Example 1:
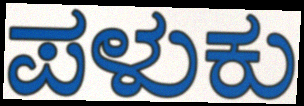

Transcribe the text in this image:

ಪಳುಕು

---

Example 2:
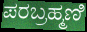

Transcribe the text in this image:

ಪರಬ್ರಹ್ಮಣಿ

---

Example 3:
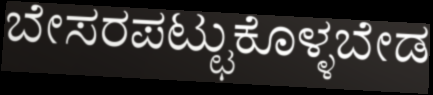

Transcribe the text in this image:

ಬೇಸರಪಟ್ಟುಕೊಳ್ಳಬೇಡ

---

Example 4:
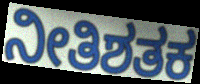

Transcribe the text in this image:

ನೀತಿಶತಕ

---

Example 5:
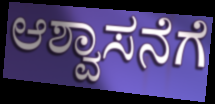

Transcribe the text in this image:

ಆಶ್ವಾಸನೆಗೆ